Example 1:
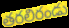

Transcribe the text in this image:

తరలిరండు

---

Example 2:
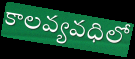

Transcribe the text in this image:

కాలవ్యవధిలో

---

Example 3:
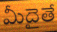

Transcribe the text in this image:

మీదైతే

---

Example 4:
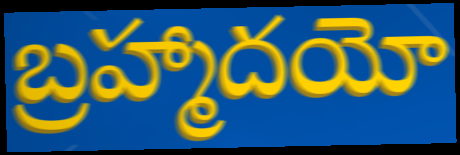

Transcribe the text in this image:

బ్రహ్మాదయో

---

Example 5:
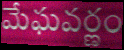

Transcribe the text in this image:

మేఘవర్ణం